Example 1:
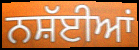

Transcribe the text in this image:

ਨਸ਼ੱਈਆਂ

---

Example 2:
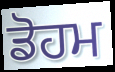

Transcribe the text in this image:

ਡੋਹਮ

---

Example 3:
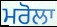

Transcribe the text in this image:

ਮਰੋਲਾ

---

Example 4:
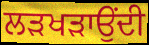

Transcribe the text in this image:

ਲੜਖੜਾਉਂਦੀ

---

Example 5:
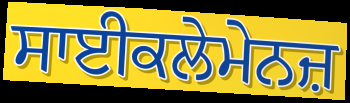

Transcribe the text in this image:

ਸਾਈਕਲੇਮੇਨਜ਼